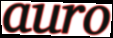
auro